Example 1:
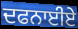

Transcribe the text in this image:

ਦਫਨਾਈਏ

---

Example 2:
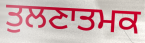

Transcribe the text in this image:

ਤੁਲਣਾਤਮਕ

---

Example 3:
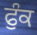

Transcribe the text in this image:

ਫੁੰਕ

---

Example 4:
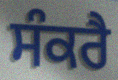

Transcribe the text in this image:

ਸੰਕਰੈ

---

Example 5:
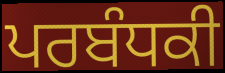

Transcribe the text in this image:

ਪਰਬੰਧਕੀ